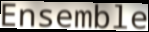
Ensemble